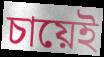
চায়েই